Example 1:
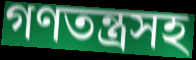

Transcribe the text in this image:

গণতন্ত্রসহ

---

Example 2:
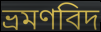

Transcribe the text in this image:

ভ্রমণবিদ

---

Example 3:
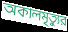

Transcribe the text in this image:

অকালমৃত্যুর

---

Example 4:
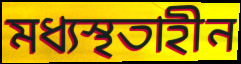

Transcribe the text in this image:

মধ্যস্থতাহীন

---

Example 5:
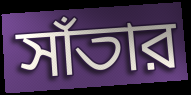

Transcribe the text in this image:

সাঁতার